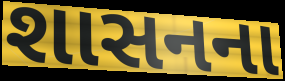
શાસનના